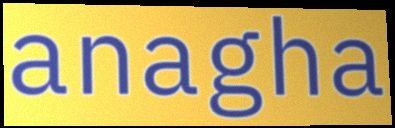
anagha